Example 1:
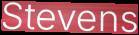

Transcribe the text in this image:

Stevens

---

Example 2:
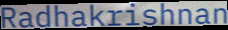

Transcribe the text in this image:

Radhakrishnan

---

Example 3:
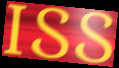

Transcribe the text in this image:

ISS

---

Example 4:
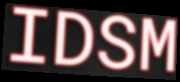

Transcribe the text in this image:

IDSM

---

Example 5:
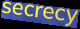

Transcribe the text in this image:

secrecy